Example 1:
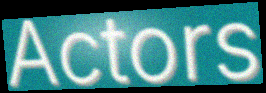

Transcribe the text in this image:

Actors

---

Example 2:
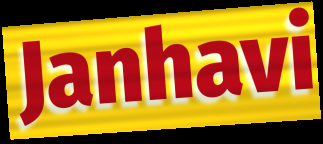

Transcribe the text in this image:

Janhavi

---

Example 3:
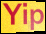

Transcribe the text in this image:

Yip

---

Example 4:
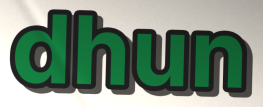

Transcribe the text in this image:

dhun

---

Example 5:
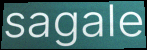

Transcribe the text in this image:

sagale